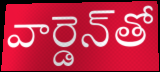
వార్డెన్‌తో